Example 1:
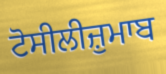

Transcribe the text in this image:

ਟੋਸੀਲੀਜ਼ੁਮਾਬ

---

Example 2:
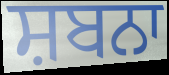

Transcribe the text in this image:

ਸ਼ਬਨਾ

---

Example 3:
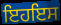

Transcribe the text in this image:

ਇਹਇਸ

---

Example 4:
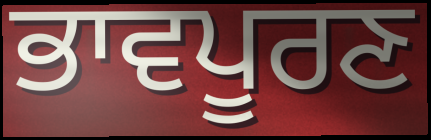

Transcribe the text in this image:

ਭਾਵਪੂਰਣ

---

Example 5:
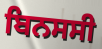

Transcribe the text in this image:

ਬਿਨਸਸੀ